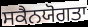
ਸਕੈਨਯੋਗਤਾ